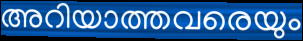
അറിയാത്തവരെയും